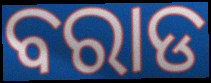
ବରାଡ